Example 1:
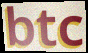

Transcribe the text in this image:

btc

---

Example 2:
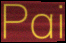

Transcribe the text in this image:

Pai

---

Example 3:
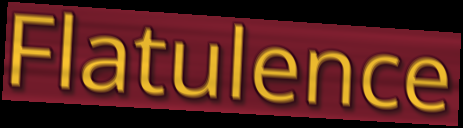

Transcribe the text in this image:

Flatulence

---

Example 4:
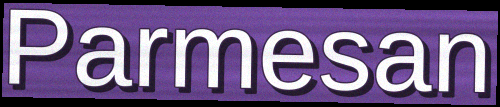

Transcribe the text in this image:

Parmesan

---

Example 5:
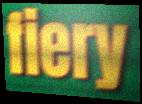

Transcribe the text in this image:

fiery